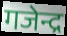
गजेन्द्र